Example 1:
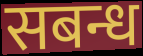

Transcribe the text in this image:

सबन्ध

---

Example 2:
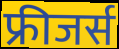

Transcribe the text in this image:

फ्रीजर्स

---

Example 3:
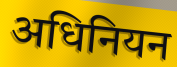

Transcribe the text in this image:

अधिनियन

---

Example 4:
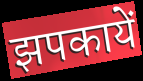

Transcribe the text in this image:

झपकायें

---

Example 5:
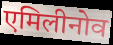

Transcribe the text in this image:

एमिलीनोव